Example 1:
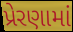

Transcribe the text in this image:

પ્રેરણામાં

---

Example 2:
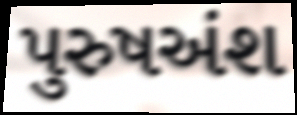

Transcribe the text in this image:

પુરુષઅંશ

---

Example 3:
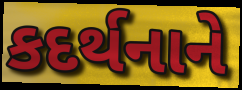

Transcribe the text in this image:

કદર્થનાને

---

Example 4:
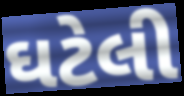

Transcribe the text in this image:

ઘટેલી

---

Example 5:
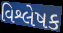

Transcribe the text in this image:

વિશ્લેષક